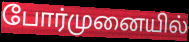
போர்முனையில்